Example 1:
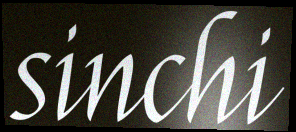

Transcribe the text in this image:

sinchi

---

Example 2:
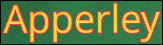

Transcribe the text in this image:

Apperley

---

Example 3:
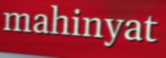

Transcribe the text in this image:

mahinyat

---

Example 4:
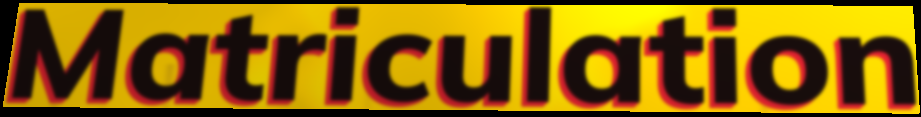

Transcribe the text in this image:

Matriculation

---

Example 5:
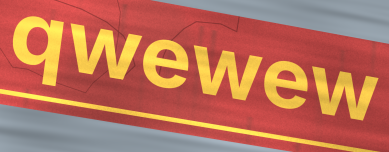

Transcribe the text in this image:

qwewew